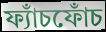
ফ্যাঁচফোঁচ